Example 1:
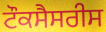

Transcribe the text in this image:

ਟੌਕਸੈਸਰੀਸ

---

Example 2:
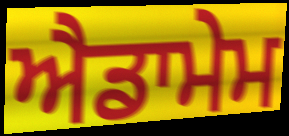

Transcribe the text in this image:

ਐਡਾਮੇਮ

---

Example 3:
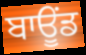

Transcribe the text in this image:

ਬਾਊਂਡ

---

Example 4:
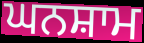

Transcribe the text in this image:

ਘਨਸ਼ਾਮ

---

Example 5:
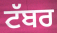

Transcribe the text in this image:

ਟੱਬਰ